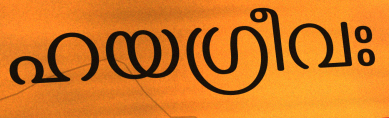
ഹയഗ്രീവഃ